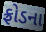
ફ્રોડના